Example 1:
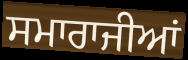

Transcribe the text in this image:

ਸਮਾਰਾਜੀਆਂ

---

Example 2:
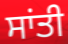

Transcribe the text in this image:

ਸਾਂਤੀ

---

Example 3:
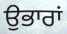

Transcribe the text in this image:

ਉਭਾਰਾਂ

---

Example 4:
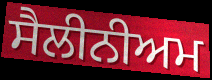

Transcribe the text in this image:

ਸੈਲੀਨੀਅਮ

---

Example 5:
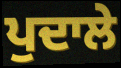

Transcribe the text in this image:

ਪੁਦਾਲੇ